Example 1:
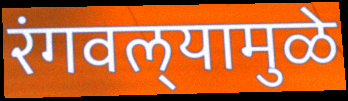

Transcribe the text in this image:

रंगवल्यामुळे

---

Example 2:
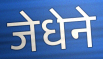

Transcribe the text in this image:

जेधेने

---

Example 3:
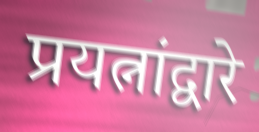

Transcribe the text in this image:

प्रयत्नांद्वारे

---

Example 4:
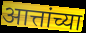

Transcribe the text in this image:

आत्तांच्या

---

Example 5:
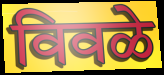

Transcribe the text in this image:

विवळे